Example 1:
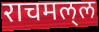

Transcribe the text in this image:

राचमल्ल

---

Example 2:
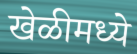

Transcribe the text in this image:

खेळीमध्ये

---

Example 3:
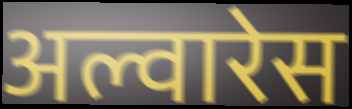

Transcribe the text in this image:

अल्वारेस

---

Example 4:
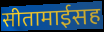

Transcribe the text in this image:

सीतामाईसह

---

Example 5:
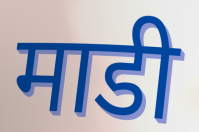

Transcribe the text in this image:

माडी